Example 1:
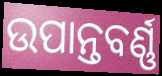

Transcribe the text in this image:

ଉପାନ୍ତବର୍ଣ୍ଣ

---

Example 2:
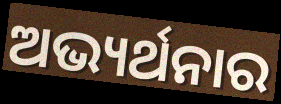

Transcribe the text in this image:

ଅଭ୍ୟର୍ଥନାର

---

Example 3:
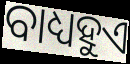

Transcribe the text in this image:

ବାଧ୍ୟହୁଏ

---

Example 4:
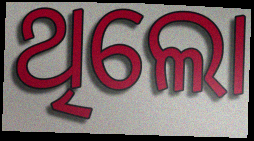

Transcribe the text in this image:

ଥିଲୋ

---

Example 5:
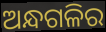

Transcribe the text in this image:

ଅନ୍ଧଗଳିର